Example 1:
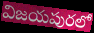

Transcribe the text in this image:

విజయపురలో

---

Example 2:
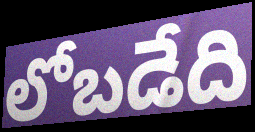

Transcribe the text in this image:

లోబడేది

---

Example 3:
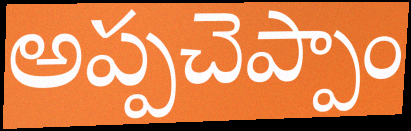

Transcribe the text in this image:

అప్పచెప్పాం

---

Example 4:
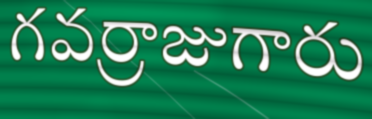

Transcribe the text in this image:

గవర్రాజుగారు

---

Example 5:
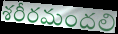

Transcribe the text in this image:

శరీరమందలి